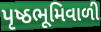
પૃષ્ઠભૂમિવાળી